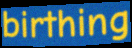
birthing